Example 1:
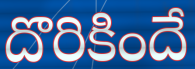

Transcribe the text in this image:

దొరికిందే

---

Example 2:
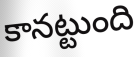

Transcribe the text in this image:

కానట్టుంది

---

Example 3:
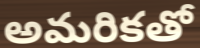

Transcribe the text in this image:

అమరికతో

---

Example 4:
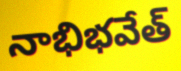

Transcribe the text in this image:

నాభిభవేత్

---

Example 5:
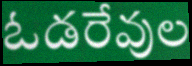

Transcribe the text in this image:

ఓడరేవుల